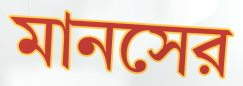
মানসের